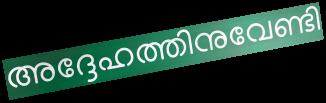
അദ്ദേഹത്തിനുവേണ്ടി